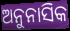
ଅନୁନାସିକ